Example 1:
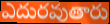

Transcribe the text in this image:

ఎదురవుతారు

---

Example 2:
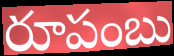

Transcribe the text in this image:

రూపంబు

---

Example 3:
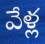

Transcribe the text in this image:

వేళ్ల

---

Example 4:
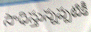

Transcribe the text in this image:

సాధిస్తున్నప్పటికీ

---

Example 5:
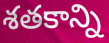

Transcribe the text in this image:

శతకాన్ని